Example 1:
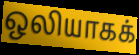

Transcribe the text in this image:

ஒலியாகக்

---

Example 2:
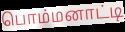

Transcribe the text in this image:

பொம்மனாட்டி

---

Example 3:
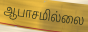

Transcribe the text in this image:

ஆபாசமில்லை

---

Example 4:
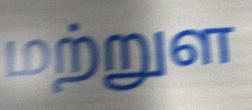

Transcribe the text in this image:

மற்றுள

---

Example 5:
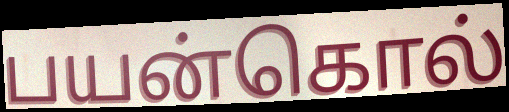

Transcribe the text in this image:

பயன்கொல்